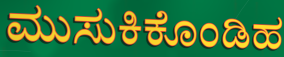
ಮುಸುಕಿಕೊಂಡಿಹ